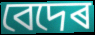
বেদেৰ